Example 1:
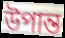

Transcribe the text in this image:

উপান্ত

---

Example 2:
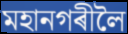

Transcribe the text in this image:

মহানগৰীলৈ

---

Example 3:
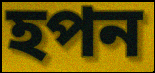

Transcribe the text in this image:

হপন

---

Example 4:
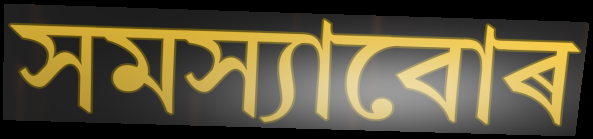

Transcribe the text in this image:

সমস্যাবোৰ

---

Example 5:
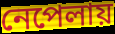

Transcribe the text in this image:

নেপেলায়